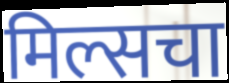
मिल्सचा